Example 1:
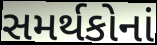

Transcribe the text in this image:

સમર્થકોનાં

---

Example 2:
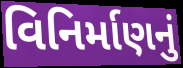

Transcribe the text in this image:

વિનિર્માણનું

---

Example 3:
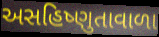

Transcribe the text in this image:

અસહિષ્ણુતાવાળા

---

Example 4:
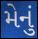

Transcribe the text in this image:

મેનું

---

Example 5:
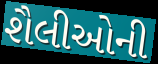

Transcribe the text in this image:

શૈલીઓની